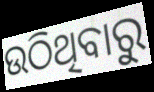
ଉଠିଥିବାରୁ